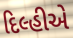
દિલ્હીએ